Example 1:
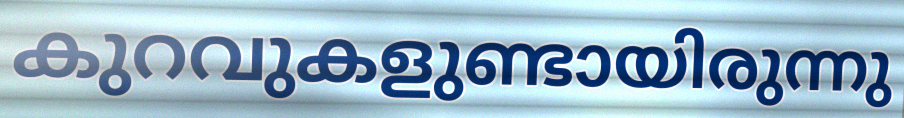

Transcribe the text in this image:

കുറവുകളുണ്ടായിരുന്നു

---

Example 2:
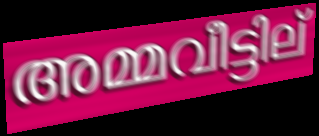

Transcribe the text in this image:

അമ്മവീട്ടില്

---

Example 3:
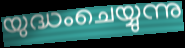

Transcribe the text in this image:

യുദ്ധംചെയ്യുന്നു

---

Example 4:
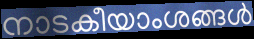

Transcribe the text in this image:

നാടകീയാംശങ്ങൾ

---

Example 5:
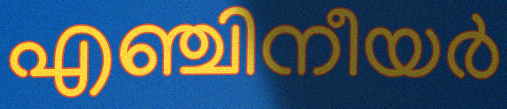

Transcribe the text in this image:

എഞ്ചിനീയർ